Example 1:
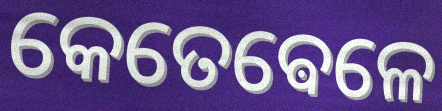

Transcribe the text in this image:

କେତେଵେଳେ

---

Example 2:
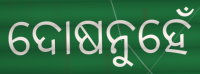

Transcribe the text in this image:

ଦୋଷନୁହେଁ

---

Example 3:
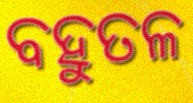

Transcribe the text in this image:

ବହୁତଳ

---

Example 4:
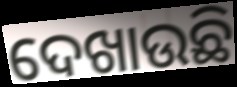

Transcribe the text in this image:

ଦେଖାଉଛି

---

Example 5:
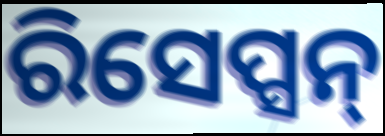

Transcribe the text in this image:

ରିସେପ୍ସନ୍